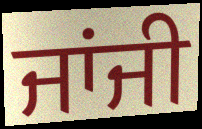
ਜਾਂਜੀ